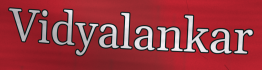
Vidyalankar